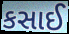
કસાઈ